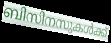
ബിസിനസുകൾക്ക്